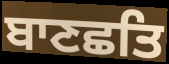
ਬਾਣਛਤਿ